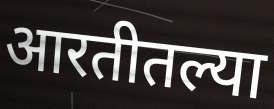
आरतीतल्या